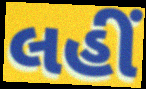
લહીં